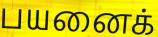
பயனைக்